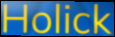
Holick